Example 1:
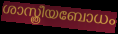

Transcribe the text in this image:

ശാസ്ത്രീയബോധം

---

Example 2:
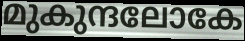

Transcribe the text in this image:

മുകുന്ദലോകേ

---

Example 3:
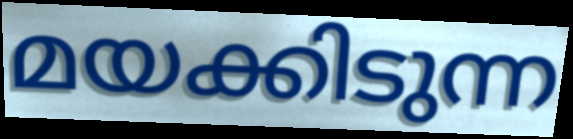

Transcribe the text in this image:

മയക്കിടുന്ന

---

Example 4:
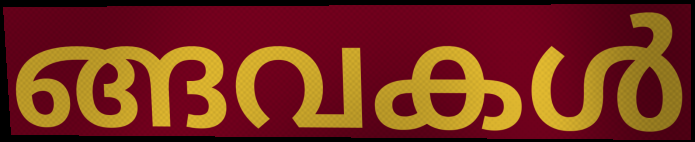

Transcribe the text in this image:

ങ്ങവകൾ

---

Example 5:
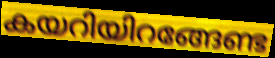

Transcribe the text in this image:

കയറിയിറങ്ങേണ്ട